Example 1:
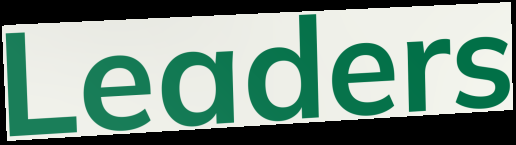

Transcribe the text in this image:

Leaders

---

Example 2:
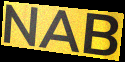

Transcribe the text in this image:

NAB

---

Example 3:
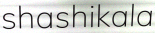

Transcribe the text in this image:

shashikala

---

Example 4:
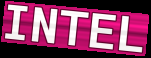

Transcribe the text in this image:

INTEL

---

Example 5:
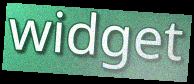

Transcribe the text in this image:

widget